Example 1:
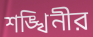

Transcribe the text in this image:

শঙ্খিনীর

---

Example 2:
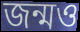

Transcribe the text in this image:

জন্মও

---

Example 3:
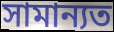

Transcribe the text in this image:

সামান্যত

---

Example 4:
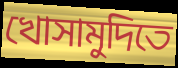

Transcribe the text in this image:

খোসামুদিতে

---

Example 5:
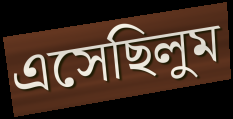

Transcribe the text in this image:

এসেছিলুম